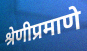
श्रेणीप्रमाणे